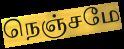
நெஞ்சமே